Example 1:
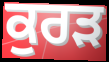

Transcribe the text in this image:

ਕੁਰੜ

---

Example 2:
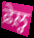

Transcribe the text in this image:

ਫ਼ੇਲ਼੍ਹ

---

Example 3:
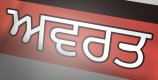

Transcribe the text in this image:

ਅਵਰਤ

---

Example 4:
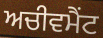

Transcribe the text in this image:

ਅਚੀਵਮੈਂਟ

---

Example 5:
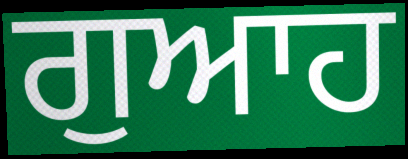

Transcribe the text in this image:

ਗੁਆਹ